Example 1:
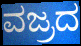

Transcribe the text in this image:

ವಜ್ರದ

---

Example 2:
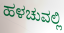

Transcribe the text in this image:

ಹಳಚುವಲ್ಲಿ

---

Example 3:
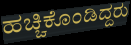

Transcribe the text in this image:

ಹಚ್ಚಿಕೊಂಡಿದ್ದರು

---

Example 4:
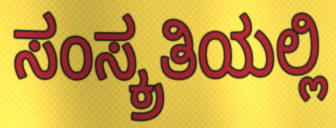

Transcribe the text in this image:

ಸಂಸ್ಕ್ರತಿಯಲ್ಲಿ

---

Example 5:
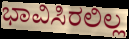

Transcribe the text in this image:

ಭಾವಿಸಿರಲಿಲ್ಲ